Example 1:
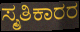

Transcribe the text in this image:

ಸ್ಮೃತಿಕಾರರ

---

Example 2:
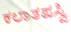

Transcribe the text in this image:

ಕಲಾತಪಸ್ವಿ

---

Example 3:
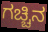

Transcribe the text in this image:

ಗಚ್ಚಿನ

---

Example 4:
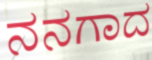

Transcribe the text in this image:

ನನಗಾದ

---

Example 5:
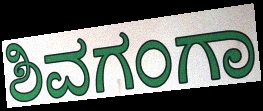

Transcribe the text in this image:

ಶಿವಗಂಗಾ